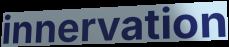
innervation